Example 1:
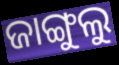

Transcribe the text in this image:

ଜାଙ୍ଗୁଲୁ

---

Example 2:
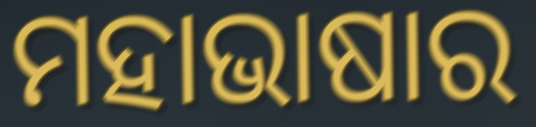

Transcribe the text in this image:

ମହାଭାଷାର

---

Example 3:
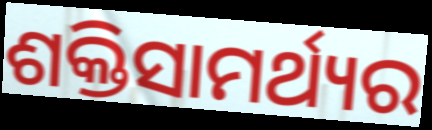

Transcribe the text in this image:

ଶକ୍ତିସାମର୍ଥ୍ୟର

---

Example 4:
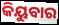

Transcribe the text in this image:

କିୟୁବାର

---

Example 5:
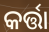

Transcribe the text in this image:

କର୍ତ୍ତା